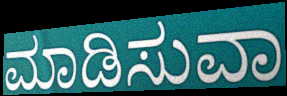
ಮಾಡಿಸುವಾ